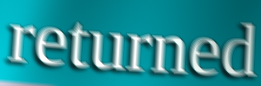
returned